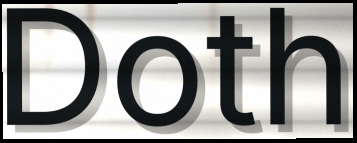
Doth